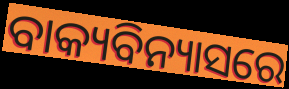
ବାକ୍ୟବିନ୍ୟାସରେ